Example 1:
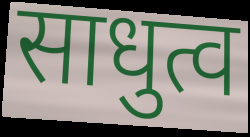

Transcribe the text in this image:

साधुत्व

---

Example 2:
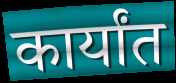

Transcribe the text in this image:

कार्यांत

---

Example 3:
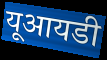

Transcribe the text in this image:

यूआयडी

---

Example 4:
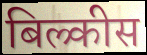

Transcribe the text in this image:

बिल्कीस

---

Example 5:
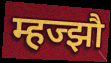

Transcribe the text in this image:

म्हज्झौ